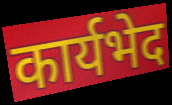
कार्यभेद